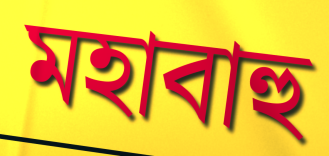
মহাবাহু